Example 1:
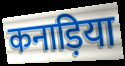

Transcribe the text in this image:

कनाड़िया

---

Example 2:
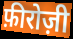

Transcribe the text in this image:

फ़ीरोज़ी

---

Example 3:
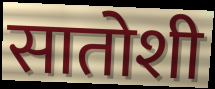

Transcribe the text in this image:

सातोशी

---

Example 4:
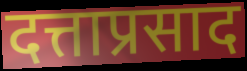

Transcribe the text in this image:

दत्ताप्रसाद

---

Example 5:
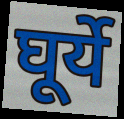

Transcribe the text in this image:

घूर्ये